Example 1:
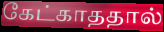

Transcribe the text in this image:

கேட்காததால்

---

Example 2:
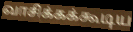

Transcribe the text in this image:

வாசிக்கக்கூடிய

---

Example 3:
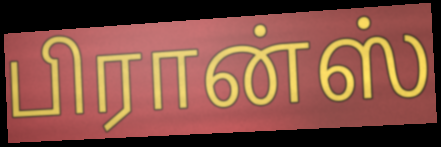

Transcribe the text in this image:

பிரான்ஸ்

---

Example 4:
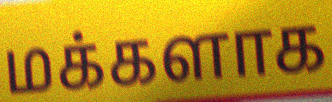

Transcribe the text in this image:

மக்களாக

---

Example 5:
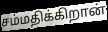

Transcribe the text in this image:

சம்மதிக்கிறான்